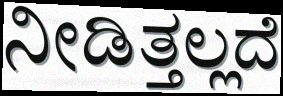
ನೀಡಿತ್ತಲ್ಲದೆ